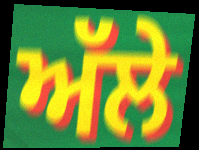
ਅੱਲੇ